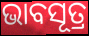
ଭାବସୂତ୍ର